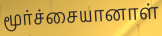
மூர்ச்சையானாள்